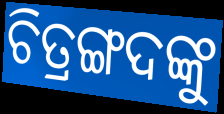
ଚିତ୍ରଙ୍ଗଦଙ୍କୁ